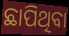
ଛାପିଥିବା